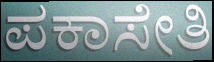
ಪಕಾಸೇತಿ